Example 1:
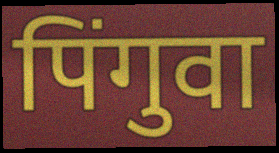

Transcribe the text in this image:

पिंगुवा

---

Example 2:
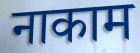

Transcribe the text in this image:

नाकाम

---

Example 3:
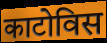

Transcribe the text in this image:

काटोविस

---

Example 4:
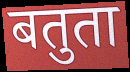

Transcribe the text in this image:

बतुता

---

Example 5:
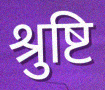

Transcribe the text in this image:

श्रुष्टि